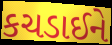
કચડાઈને